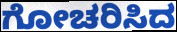
ಗೋಚರಿಸಿದ